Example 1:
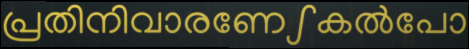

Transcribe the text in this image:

പ്രതിനിവാരണേഽകൽപോ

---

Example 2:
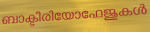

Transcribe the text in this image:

ബാക്ടീരിയോഫേജുകൾ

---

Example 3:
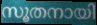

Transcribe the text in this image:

സൂതനായി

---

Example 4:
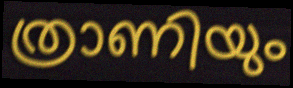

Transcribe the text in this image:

ത്രാണിയും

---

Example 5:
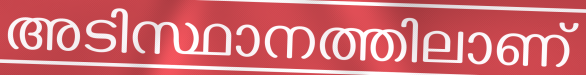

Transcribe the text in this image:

അടിസ്ഥാനത്തിലാണ്